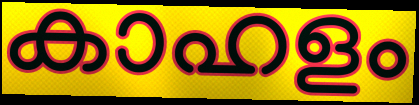
കാഹളം